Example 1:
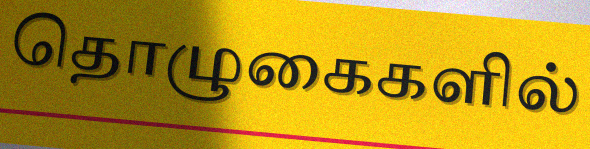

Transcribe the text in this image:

தொழுகைகளில்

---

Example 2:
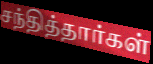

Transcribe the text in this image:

சந்தித்தார்கள்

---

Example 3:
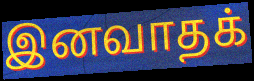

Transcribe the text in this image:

இனவாதக்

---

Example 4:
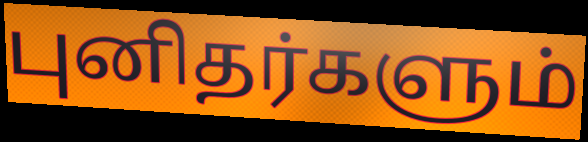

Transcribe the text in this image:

புனிதர்களும்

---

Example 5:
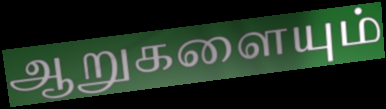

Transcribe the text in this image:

ஆறுகளையும்